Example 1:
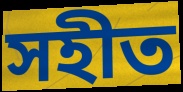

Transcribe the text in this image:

সহীত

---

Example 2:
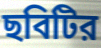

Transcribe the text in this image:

ছবিটির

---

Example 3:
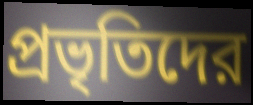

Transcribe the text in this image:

প্রভৃতিদের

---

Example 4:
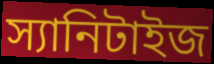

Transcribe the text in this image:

স্যানিটাইজ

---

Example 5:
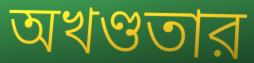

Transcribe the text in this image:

অখণ্ডতার